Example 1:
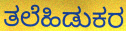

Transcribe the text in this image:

ತಲೆಹಿಡುಕರ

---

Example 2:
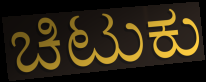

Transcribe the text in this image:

ಚಿಟುಕು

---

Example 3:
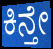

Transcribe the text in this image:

ಕಿನ್ತೇ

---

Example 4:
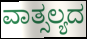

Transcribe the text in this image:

ವಾತ್ಸಲ್ಯದ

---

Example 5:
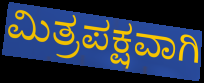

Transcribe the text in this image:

ಮಿತ್ರಪಕ್ಷವಾಗಿ